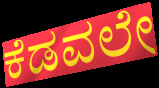
ಕೆಡವಲೇ